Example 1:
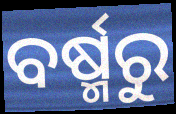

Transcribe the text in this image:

ବର୍ଷ୍ମରୁ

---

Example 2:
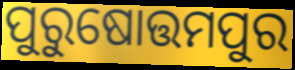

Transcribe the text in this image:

ପୁରୁଷୋତ୍ତମପୁର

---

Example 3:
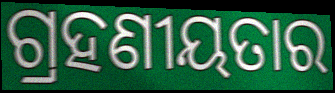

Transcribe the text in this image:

ଗ୍ରହଣୀୟତାର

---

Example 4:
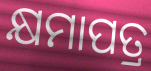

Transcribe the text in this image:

କ୍ଷମାପତ୍ର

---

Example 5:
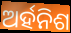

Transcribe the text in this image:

ଅର୍ହନିଶ